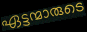
ഏട്ടന്മാരുടെ